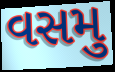
વસમુ